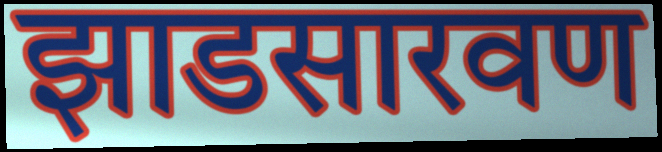
झाडसारवण